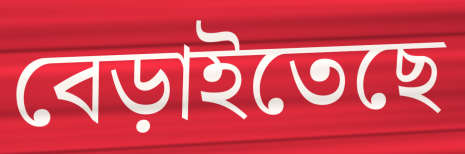
বেড়াইতেছে